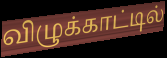
விழுக்காட்டில்